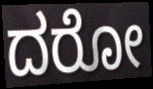
ದರೋ